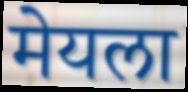
मेयला